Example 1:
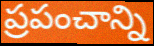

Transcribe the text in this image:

ప్రపంచాన్ని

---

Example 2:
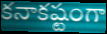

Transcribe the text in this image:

కనాకష్టంగా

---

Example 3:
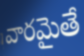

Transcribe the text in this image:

వారమైతే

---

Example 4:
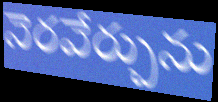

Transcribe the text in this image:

నెరవేర్చును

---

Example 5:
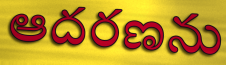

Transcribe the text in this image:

ఆదరణను